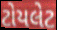
ટોયલેટ